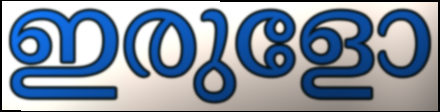
ഇരുളോ